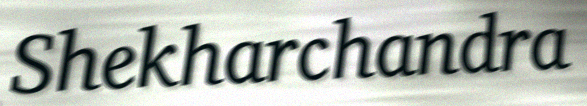
Shekharchandra